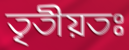
তৃতীয়তঃ